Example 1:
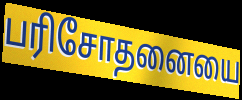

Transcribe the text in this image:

பரிசோதனையை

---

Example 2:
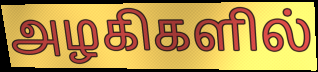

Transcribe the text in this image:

அழகிகளில்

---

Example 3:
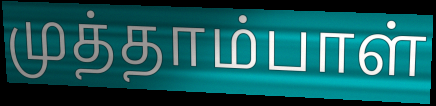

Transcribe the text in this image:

முத்தாம்பாள்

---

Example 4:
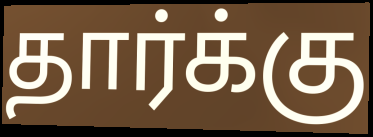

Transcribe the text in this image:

தார்க்கு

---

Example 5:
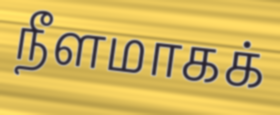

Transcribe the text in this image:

நீளமாகக்